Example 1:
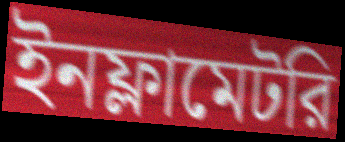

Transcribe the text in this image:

ইনফ্লামেটরি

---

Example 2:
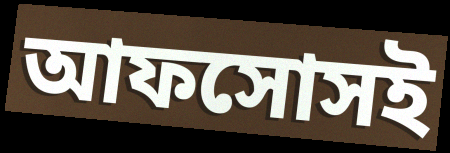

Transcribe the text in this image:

আফসোসই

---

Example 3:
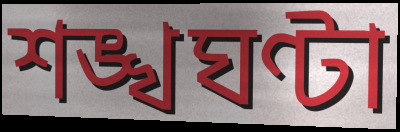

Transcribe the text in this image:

শঙ্খঘণ্টা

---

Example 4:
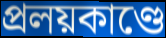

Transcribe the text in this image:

প্রলয়কাণ্ডে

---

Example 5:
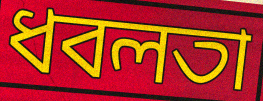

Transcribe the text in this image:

ধবলতা